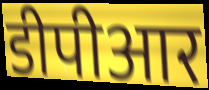
डीपीआर